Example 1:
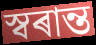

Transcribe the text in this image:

স্বৰান্ত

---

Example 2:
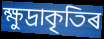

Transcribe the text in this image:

ক্ষুদ্ৰাকৃতিৰ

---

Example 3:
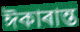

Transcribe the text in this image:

ঈকাৰান্ত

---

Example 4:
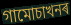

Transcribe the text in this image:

গামোচাখনৰ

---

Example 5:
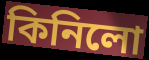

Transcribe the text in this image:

কিনিলো